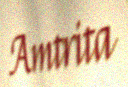
Amtrita